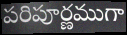
పరిపూర్ణముగా